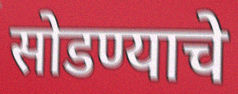
सोडण्याचे